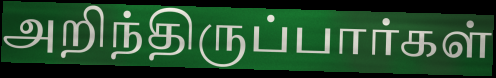
அறிந்திருப்பார்கள்